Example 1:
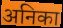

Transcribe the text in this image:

अनिका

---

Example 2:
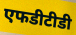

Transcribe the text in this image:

एफडीटीडी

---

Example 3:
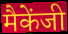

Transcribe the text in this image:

मैकेंजी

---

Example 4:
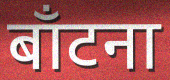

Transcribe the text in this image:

बाँटना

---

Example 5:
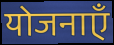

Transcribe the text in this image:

योजनाएँ